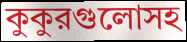
কুকুরগুলোসহ